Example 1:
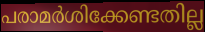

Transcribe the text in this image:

പരാമർശിക്കേണ്ടതില്ല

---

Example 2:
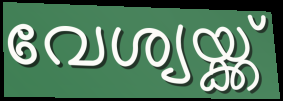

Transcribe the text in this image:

വേശ്യയ്ക്ക്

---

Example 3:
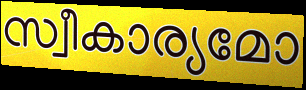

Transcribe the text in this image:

സ്വീകാര്യമോ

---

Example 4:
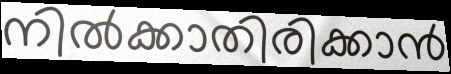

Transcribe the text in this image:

നിൽക്കാതിരിക്കാൻ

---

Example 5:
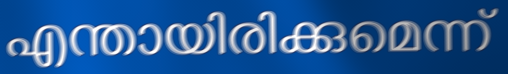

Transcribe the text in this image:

എന്തായിരിക്കുമെന്ന്